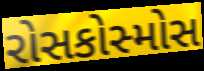
રોસકોસ્મોસ